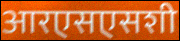
आरएसएसशी